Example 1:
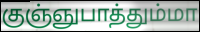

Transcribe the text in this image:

குஞ்ஞுபாத்தும்மா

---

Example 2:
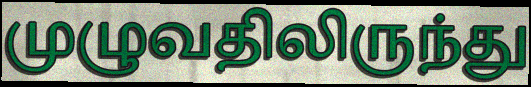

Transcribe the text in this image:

முழுவதிலிருந்து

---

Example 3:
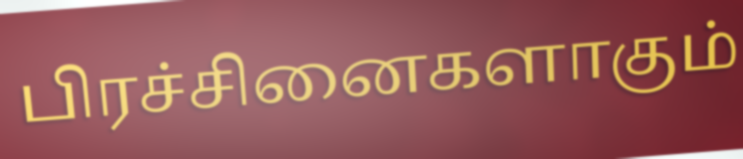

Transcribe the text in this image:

பிரச்சினைகளாகும்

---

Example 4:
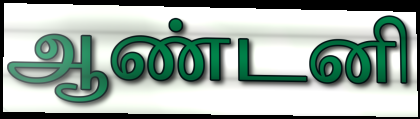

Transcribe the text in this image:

ஆண்டனி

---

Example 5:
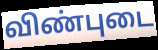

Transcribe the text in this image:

விண்புடை